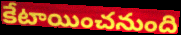
కేటాయించనుంది